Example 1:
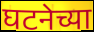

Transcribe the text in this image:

घटनेच्या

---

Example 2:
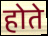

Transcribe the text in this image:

होते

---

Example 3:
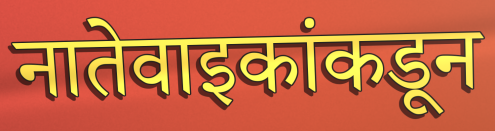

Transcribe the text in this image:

नातेवाइकांकडून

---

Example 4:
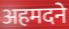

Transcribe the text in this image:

अहमदने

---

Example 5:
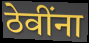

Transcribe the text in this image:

ठेवींना